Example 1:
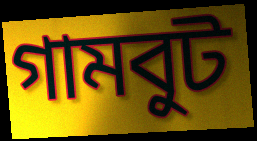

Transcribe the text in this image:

গামবুট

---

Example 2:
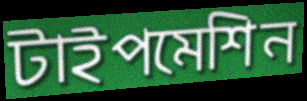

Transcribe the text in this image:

টাইপমেশিন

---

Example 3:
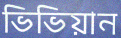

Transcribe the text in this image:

ভিভিয়ান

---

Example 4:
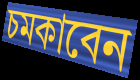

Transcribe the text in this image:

চমকাবেন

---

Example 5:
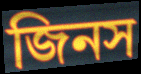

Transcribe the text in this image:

জিনস